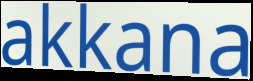
akkana